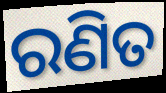
ରଣିତ